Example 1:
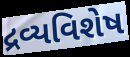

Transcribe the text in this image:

દ્રવ્યવિશેષ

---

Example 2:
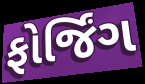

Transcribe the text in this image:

ફોર્જિંગ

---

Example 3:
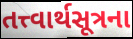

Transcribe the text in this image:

તત્ત્વાર્થસૂત્રના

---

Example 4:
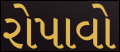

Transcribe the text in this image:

રોપાવો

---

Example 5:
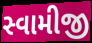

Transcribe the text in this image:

સ્વામીજી